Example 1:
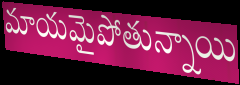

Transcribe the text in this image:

మాయమైపోతున్నాయి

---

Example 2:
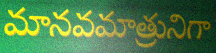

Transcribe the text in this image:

మానవమాత్రునిగా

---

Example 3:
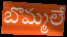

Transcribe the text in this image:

బొమ్మలే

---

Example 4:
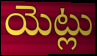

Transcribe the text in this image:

యెట్లు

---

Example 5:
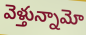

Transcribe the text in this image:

వెళ్తున్నామో